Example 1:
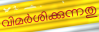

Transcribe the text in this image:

വിമർശിക്കുന്നതു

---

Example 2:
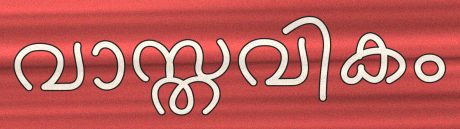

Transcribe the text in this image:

വാസ്തവികം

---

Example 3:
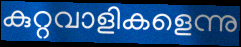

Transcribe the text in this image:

കുറ്റവാളികളെന്നു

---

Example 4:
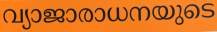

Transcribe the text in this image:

വ്യാജാരാധനയുടെ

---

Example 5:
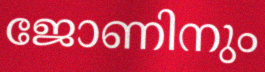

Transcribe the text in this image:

ജോണിനും